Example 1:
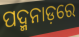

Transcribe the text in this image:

ପଦ୍ମନାଡ଼ରେ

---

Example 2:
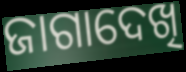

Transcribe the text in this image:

ଜାଗାଦେଖି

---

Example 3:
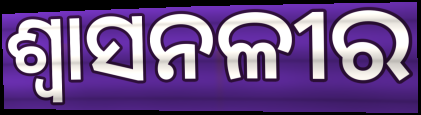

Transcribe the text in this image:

ଶ୍ୱାସନଳୀର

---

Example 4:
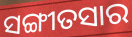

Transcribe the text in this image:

ସଙ୍ଗୀତସାର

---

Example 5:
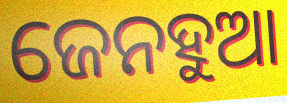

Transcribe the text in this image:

ଜେନହୁଆ